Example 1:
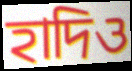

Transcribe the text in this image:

হাদিও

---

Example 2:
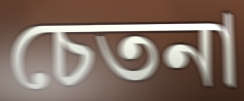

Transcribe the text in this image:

চেতনা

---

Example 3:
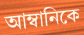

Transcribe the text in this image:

আম্বানিকে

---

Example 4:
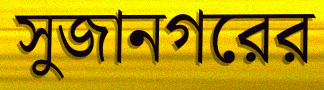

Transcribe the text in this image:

সুজানগরের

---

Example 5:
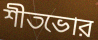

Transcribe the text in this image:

শীতভোর